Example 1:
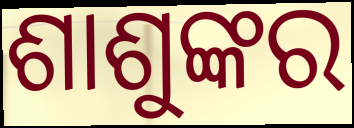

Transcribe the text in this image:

ଶାଶୁଙ୍କର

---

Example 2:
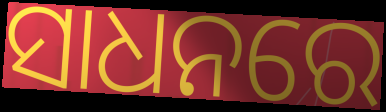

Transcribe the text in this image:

ସାଧନରେ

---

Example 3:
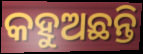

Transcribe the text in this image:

କହୁଅଛନ୍ତି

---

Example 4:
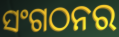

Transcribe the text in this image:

ସଂଗଠନର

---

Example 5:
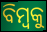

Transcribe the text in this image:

ବିମ୍ବକୁ